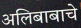
अलिबाबाचे